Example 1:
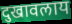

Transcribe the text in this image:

दुखावलाय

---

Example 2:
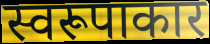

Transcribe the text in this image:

स्वरूपाकार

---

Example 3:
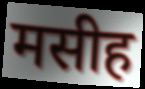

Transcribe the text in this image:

मसीह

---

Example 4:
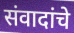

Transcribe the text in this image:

संवादांचे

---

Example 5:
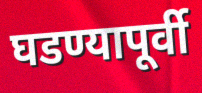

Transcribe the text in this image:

घडण्यापूर्वी